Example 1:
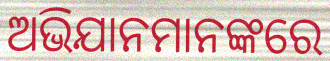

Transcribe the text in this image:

ଅଭିଯାନମାନଙ୍କରେ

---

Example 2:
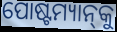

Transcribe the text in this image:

ପୋଷ୍ଟମ୍ୟାନ୍‌କୁ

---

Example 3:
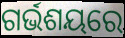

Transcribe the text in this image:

ଗର୍ଭଶୟରେ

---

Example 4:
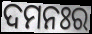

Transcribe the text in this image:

ଦମନଃର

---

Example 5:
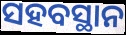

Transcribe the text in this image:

ସହବସ୍ଥାନ